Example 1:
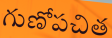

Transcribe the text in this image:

గుణోపచిత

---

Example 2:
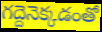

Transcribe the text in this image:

గద్దెనెక్కడంతో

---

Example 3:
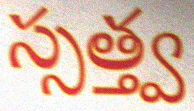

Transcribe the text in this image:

స్సత్త్వ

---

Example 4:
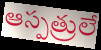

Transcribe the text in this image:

ఆస్పత్రులే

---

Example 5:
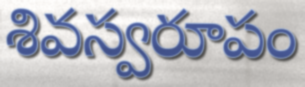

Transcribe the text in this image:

శివస్వరూపం